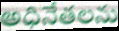
అధినేతలను